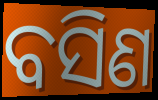
ବସିଣ